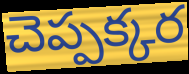
చెప్పక్కర